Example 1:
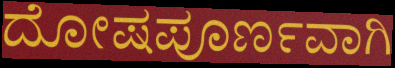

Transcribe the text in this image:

ದೋಷಪೂರ್ಣವಾಗಿ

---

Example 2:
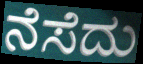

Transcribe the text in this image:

ನೆಸೆದು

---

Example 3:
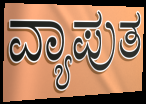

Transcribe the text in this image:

ವ್ಯಾಪುತ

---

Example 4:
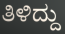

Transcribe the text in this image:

ತಿಳಿದ್ದು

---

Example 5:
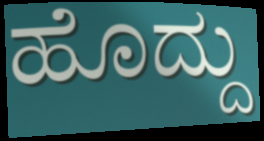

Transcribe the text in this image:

ಹೊದ್ದು